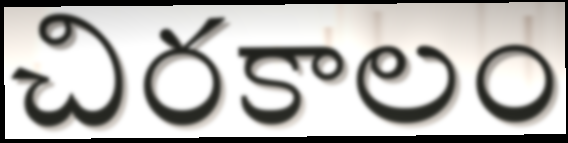
చిరకాలం